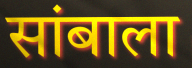
सांबाला